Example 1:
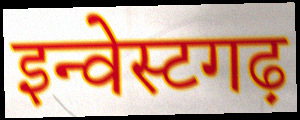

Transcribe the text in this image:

इन्वेस्टगढ़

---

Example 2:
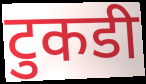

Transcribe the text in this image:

टुकडी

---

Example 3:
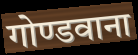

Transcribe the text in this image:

गोण्डवाना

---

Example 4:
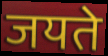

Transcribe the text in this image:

जयते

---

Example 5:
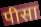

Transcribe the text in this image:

पीसा